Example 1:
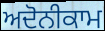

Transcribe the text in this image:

ਅਦੋਨੀਕਾਮ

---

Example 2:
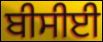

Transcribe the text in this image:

ਬੀਸੀਈ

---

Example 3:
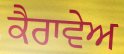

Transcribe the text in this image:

ਕੈਰਾਵੇਅ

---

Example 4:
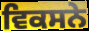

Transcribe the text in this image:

ਵਿਕਸਨੇ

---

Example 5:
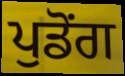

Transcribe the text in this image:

ਪੁਡੋਂਗ